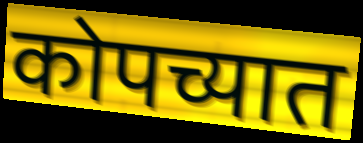
कोपच्यात